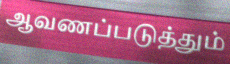
ஆவணப்படுத்தும்